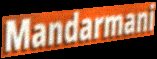
Mandarmani